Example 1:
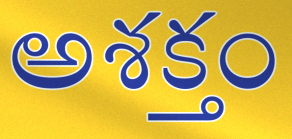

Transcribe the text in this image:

అశక్తం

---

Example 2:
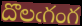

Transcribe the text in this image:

దొలఁగంగ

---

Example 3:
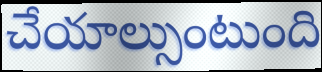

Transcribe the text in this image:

చేయాల్సుంటుంది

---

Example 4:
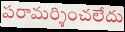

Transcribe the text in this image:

పరామర్శించలేదు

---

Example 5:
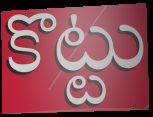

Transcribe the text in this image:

కొట్టు